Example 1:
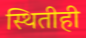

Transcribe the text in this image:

स्थितीही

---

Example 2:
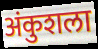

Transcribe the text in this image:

अंकुशला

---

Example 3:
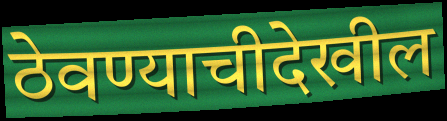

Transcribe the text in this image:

ठेवण्याचीदेखील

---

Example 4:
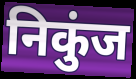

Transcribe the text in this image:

निकुंज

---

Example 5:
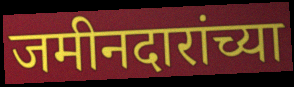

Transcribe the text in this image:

जमीनदारांच्या